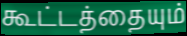
கூட்டத்தையும்